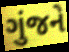
ગુંજને